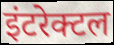
इंटरेक्टल